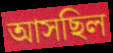
আসছিল